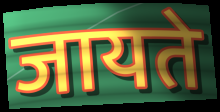
जायते